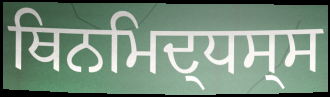
ਥਿਨਮਿਦ੍ਧਸ੍ਸ